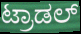
ಟ್ರಾಡಲ್